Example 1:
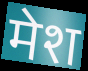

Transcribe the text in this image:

मेश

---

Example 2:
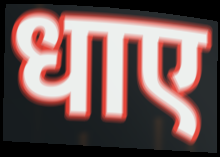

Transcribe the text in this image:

धाए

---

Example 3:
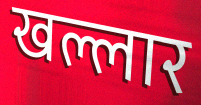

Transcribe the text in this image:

खल्लार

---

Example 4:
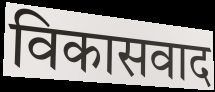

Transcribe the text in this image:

विकासवाद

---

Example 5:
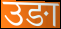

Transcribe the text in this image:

उङा